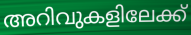
അറിവുകളിലേക്ക്